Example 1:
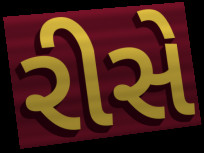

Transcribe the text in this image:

રીસે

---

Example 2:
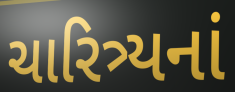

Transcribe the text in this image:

ચારિત્ર્યનાં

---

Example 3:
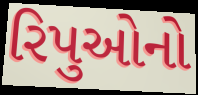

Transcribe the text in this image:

રિપુઓનો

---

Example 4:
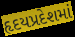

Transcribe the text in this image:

હૃદયપ્રદેશમાં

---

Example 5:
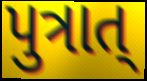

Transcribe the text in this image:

પુત્રાત્